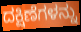
ದಕ್ಷಿಣೆಗಳನ್ನು